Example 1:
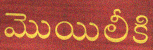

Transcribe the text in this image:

మొయిలీకి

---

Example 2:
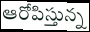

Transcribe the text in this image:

ఆరోపిస్తున్న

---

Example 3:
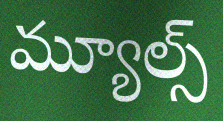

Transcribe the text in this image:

మ్యూల్స్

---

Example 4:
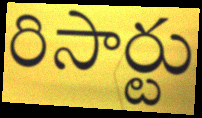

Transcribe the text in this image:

రిసార్టు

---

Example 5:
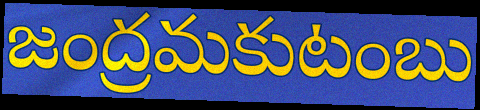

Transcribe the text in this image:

జంద్రమకుటంబు